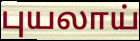
புயலாய்